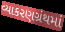
વ્યાકરણગ્રંથમાં